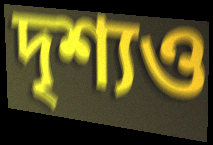
দৃশ্যও